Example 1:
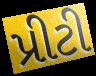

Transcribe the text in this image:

પ્રીટી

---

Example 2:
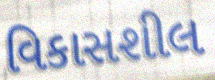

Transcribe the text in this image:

વિકાસશીલ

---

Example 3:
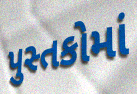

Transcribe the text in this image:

પુસ્તકોમાં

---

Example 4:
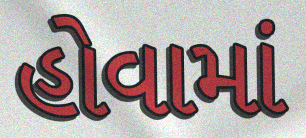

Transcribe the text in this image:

હોવામાં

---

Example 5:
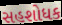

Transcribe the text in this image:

સહશોધક